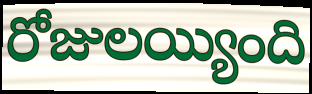
రోజులయ్యింది